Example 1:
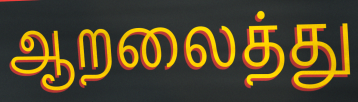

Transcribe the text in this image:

ஆறலைத்து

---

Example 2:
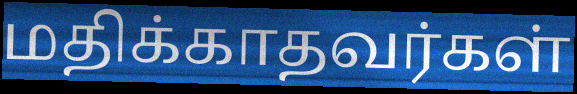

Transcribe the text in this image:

மதிக்காதவர்கள்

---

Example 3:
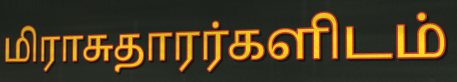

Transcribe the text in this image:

மிராசுதாரர்களிடம்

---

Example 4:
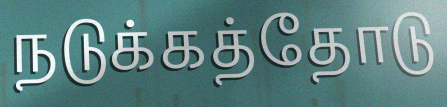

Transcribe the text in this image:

நடுக்கத்தோடு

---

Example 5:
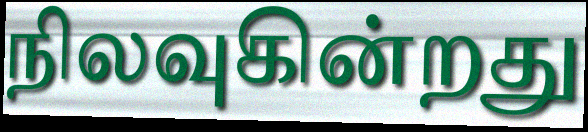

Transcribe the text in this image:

நிலவுகின்றது